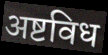
अष्टविध